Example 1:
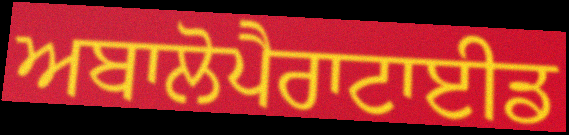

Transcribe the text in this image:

ਅਬਾਲੋਪੈਰਾਟਾਈਡ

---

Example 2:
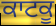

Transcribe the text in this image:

ਕਾਟਕੂ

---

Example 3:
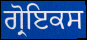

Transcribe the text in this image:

ਗ੍ਰੋਇਕਸ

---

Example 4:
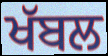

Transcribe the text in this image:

ਖੱਬਲ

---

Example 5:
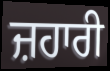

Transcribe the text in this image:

ਜ਼ਹਾਰੀ